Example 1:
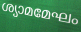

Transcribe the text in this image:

ശ്യാമമേഘം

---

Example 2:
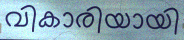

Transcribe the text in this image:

വികാരിയായി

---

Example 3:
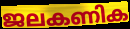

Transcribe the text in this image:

ജലകണിക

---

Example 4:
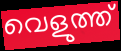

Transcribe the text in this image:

വെളുത്ത്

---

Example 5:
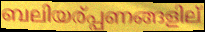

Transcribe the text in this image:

ബലിയര്പ്പണങ്ങളില്